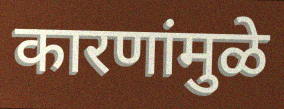
कारणांमुळे